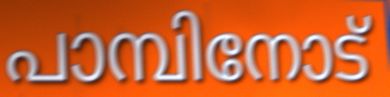
പാമ്പിനോട്